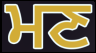
ਮਣ